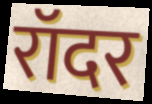
रॉदर